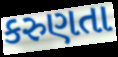
કરુણતા